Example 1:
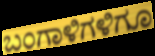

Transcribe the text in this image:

ಬಂಗಾಳಿಗಳಿಗೂ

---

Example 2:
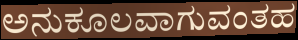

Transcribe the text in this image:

ಅನುಕೂಲವಾಗುವಂತಹ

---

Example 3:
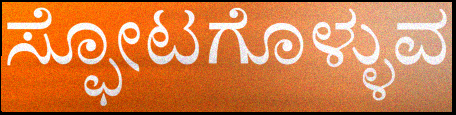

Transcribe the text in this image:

ಸ್ಫೋಟಗೊಳ್ಳುವ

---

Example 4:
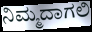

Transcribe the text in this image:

ನಿಮ್ಮದಾಗಲಿ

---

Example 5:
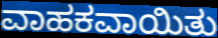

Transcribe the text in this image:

ವಾಹಕವಾಯಿತು